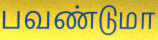
பவண்டுமா